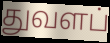
துவளப்